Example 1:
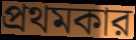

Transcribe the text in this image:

প্রথমকার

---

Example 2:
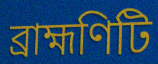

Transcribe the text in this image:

ব্রাহ্মণিটি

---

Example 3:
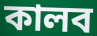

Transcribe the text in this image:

কালব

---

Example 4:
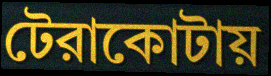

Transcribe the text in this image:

টেরাকোটায়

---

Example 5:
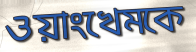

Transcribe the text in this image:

ওয়াংখেমকে